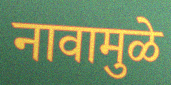
नावामुळे